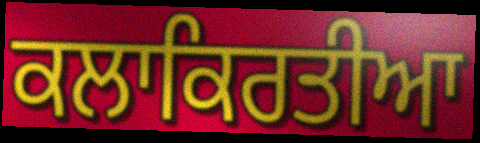
ਕਲਾਕਿਰਤੀਆ